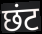
छंट